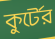
কুর্টের